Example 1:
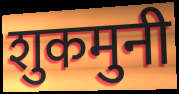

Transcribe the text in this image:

शुकमुनी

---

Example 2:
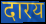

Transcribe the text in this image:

दारय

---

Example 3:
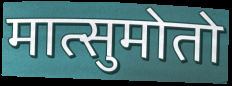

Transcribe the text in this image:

मात्सुमोतो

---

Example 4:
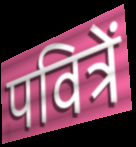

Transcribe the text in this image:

पवित्रें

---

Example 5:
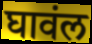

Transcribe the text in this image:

घावंल